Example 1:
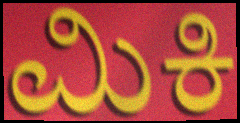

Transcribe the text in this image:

ಮಿಕಿ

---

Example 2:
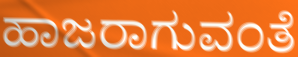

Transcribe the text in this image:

ಹಾಜರಾಗುವಂತೆ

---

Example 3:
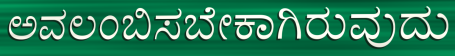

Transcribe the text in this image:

ಅವಲಂಬಿಸಬೇಕಾಗಿರುವುದು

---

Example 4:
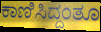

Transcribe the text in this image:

ಕಾಣಿಸಿದ್ದಂತೂ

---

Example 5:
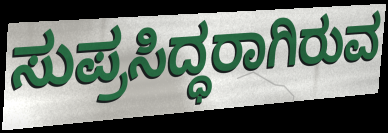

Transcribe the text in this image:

ಸುಪ್ರಸಿದ್ಧರಾಗಿರುವ